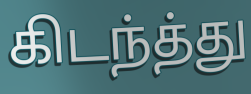
கிடந்த்து